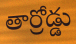
తార్రోడ్డు